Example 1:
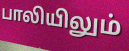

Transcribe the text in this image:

பாலியிலும்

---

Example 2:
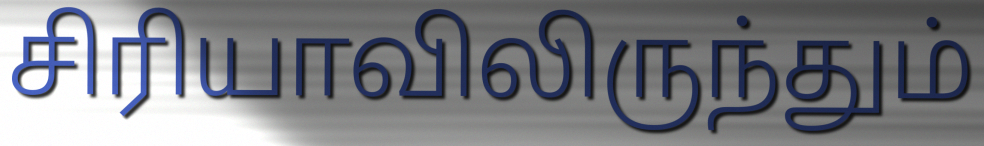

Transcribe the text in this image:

சிரியாவிலிருந்தும்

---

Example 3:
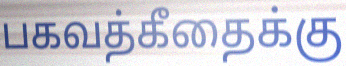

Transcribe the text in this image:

பகவத்கீதைக்கு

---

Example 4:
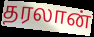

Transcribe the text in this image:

தரலான்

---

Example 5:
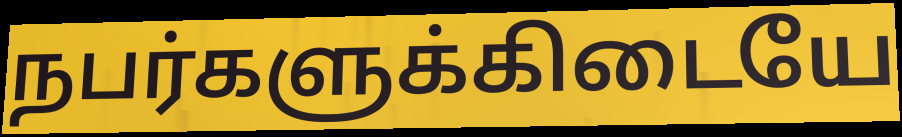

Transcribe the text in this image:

நபர்களுக்கிடையே